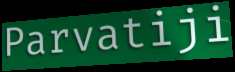
Parvatiji